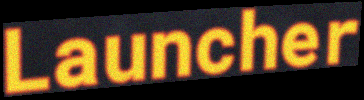
Launcher